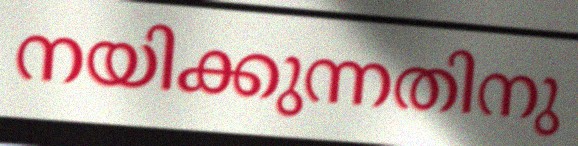
നയിക്കുന്നതിനു